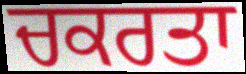
ਚਕਰਤਾ